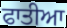
ਫਾਤੀਆ